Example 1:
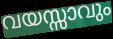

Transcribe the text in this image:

വയസ്സാവും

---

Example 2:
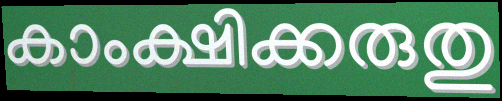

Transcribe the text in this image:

കാംക്ഷിക്കരുതു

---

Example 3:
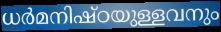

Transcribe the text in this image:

ധർമനിഷ്ഠയുള്ളവനും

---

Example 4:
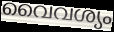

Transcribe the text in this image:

വൈവശ്യം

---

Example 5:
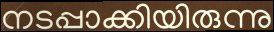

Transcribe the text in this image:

നടപ്പാക്കിയിരുന്നു